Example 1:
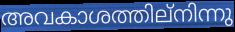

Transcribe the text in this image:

അവകാശത്തില്നിന്നു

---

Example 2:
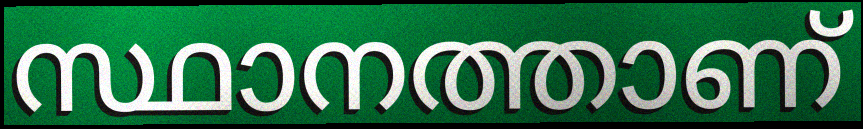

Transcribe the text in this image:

സ്ഥാനത്താണ്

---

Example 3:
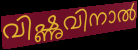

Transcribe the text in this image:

വിഷ്ണുവിനാൽ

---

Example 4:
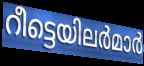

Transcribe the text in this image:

റീട്ടെയിലർമാർ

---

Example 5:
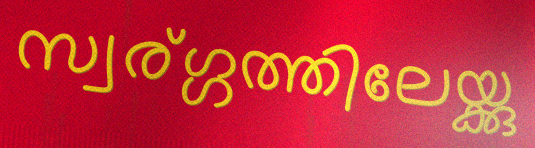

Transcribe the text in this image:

സ്വര്ഗ്ഗത്തിലേയ്ക്കു